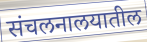
संचलनालयातील